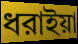
ধরাইয়া